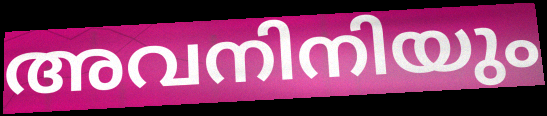
അവനിനിയും